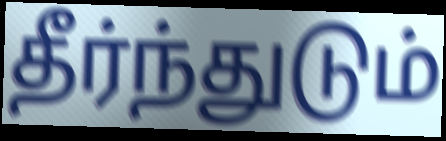
தீர்ந்துடும்